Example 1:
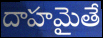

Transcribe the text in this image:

దాహమైతే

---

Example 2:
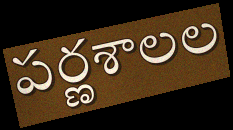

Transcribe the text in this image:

పర్ణశాలల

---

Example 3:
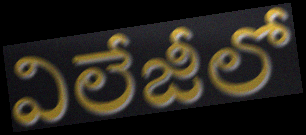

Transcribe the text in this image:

విలేజీలో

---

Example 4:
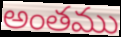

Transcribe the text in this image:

అంతము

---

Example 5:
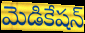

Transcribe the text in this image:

మెడికేషన్